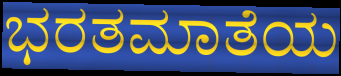
ಭರತಮಾತೆಯ